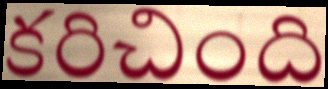
కరిచింది